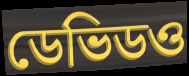
ডেভিডও